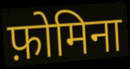
फ़ोमिना